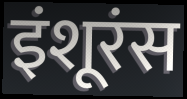
इंशूरंस